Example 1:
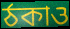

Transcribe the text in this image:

ঠকাও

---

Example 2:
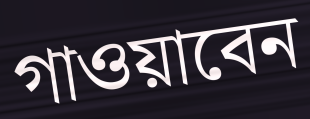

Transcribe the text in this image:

গাওয়াবেন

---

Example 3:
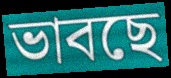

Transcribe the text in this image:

ভাবছে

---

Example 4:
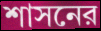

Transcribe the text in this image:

শাসনের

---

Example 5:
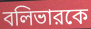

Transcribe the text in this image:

বলিভারকে